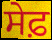
ਸੇਫ਼